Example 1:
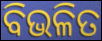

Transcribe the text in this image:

ବିଭଳିତ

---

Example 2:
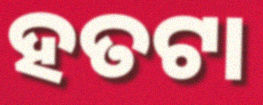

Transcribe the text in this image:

ହତଟା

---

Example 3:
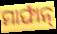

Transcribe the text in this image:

ମାର୍ଫାନ୍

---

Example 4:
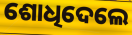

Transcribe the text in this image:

ଶୋଧିଦେଲେ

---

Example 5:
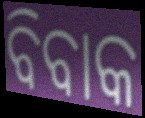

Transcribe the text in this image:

ବିବାକ